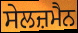
ਸੇਲਜ਼ਮੈਨ